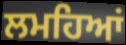
ਲਮਹਿਆਂ